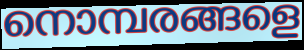
നൊമ്പരങ്ങളെ